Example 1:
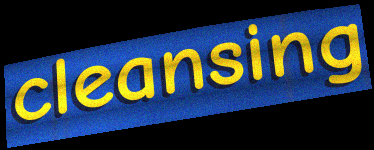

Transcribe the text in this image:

cleansing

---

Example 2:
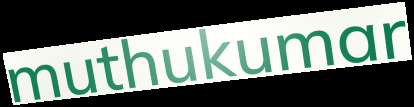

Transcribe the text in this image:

muthukumar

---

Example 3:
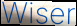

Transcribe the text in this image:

Wiser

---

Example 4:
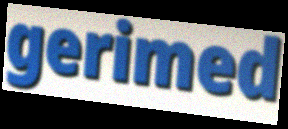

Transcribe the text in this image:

gerimed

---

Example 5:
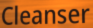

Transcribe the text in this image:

Cleanser